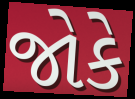
જોકે